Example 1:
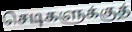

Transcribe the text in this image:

செடிகளுக்குத்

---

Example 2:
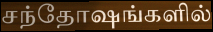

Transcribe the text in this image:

சந்தோஷங்களில்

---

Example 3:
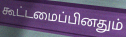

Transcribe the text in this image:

கூட்டமைப்பினதும்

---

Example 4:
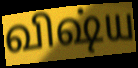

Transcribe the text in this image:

விஷ்ய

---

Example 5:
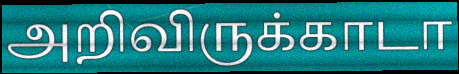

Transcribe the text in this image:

அறிவிருக்காடா